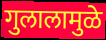
गुलालामुळे